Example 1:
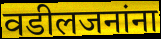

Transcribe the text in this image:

वडीलजनांना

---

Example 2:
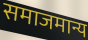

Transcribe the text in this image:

समाजमान्य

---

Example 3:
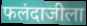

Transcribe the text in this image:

फलंदाजीला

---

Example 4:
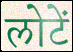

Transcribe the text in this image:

लोटें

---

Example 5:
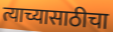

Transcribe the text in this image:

त्याच्यासाठीचा